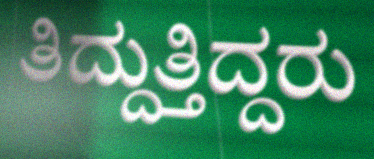
ತಿದ್ದುತ್ತಿದ್ದರು